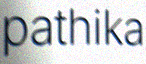
pathika